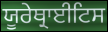
ਯੂਰੇਥ੍ਰਾਈਟਿਸ